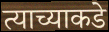
त्याच्याकडे